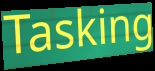
Tasking